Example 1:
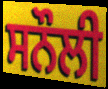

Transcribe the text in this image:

ਸਨੌਲੀ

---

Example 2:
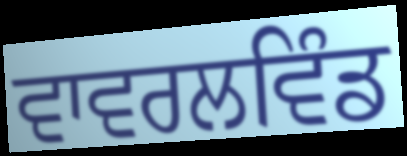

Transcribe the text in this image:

ਵਾਵਰਲਵਿੰਡ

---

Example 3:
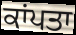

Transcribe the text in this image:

ਕਾਂਪਤਾ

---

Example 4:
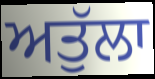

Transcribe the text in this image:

ਅਤੁੱਲਾ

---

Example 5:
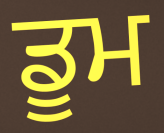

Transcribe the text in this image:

ਡੂਮ